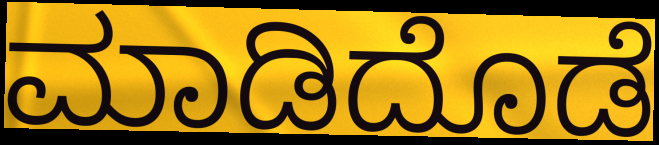
ಮಾಡಿದೊಡೆ